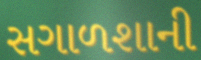
સગાળશાની